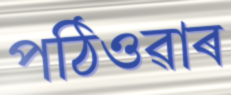
পঠিওৱাৰ